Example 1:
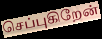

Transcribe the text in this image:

செப்புகிறேன்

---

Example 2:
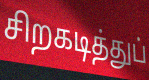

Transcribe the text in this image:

சிறகடித்துப்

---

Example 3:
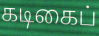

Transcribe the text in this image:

கடிகைப்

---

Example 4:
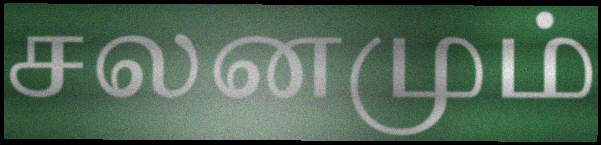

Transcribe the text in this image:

சலனமும்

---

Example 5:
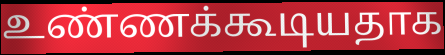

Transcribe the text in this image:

உண்ணக்கூடியதாக